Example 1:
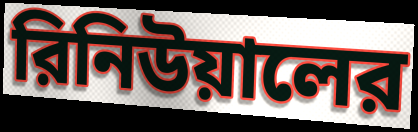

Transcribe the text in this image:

রিনিউয়ালের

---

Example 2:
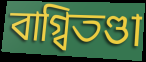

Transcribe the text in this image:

বাগ্বিতণ্ডা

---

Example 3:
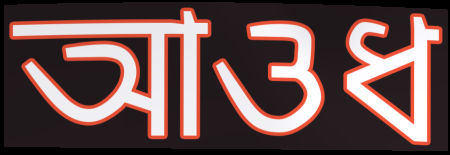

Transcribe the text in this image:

আওধ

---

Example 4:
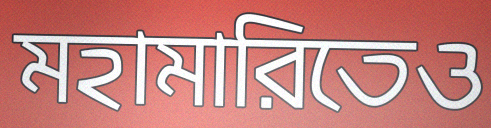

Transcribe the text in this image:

মহামারিতেও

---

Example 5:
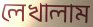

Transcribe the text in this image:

লেখালাম